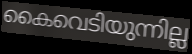
കൈവെടിയുന്നില്ല